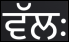
ਵੱਲਃ